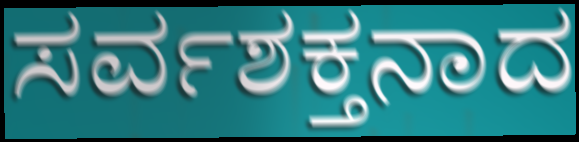
ಸರ್ವಶಕ್ತನಾದ